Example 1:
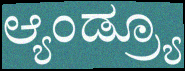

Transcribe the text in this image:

ಆ್ಯಂಡ್ರ್ಯೂ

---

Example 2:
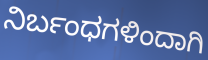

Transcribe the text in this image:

ನಿರ್ಬಂಧಗಳಿಂದಾಗಿ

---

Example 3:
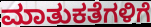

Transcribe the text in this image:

ಮಾತುಕತೆಗಳಿಗೆ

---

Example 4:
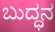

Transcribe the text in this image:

ಬುದ್ಧನ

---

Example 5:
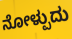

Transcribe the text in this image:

ನೋಳ್ಪುದು